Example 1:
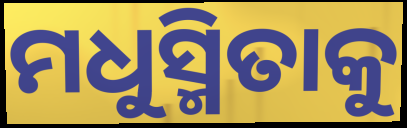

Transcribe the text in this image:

ମଧୁସ୍ମିତାକୁ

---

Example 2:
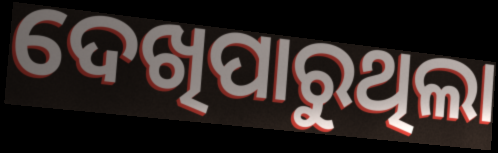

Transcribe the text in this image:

ଦେଖିପାରୁଥିଲା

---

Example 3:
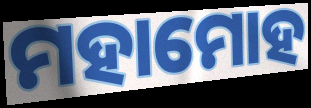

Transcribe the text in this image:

ମହାମୋହ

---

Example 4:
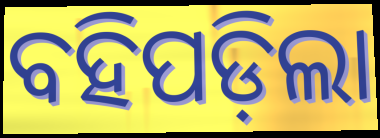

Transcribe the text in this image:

ବହିପଡ଼ିଲା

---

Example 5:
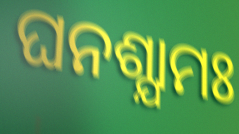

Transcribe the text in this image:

ଘନଶ୍ଯାମଃ